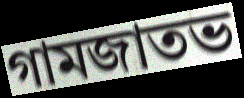
গামজাতভ